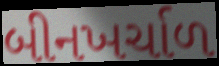
બીનખર્ચાળ